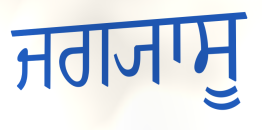
ਜਗ੍ਯਾਸੂ